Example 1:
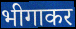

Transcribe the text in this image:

भीगाकर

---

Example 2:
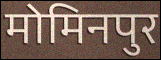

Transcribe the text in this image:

मोमिनपुर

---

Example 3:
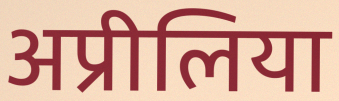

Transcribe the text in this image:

अप्रीलिया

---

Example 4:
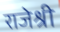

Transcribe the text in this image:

राजेश्री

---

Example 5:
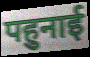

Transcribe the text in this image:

पहुनाई